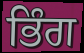
ਭਿੰਗ